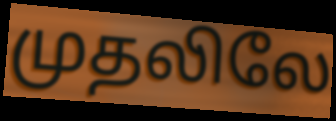
முதலிலே